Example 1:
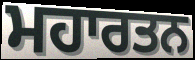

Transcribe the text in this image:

ਮਹਾਰਤਨ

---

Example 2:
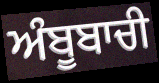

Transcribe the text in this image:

ਅੰਬੂਬਾਚੀ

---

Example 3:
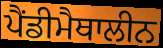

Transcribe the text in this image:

ਪੈਂਡੀਮੈਥਾਲੀਨ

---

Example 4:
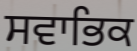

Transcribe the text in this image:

ਸਵਾਭਿਕ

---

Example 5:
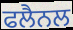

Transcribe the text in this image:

ਫਲੈਨਲ